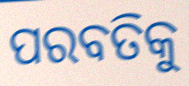
ପରବତିକୁ